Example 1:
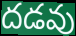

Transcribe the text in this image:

దడవు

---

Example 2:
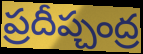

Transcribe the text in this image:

ప్రదీప్చంద్ర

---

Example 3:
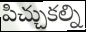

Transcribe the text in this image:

పిచ్చుకల్ని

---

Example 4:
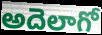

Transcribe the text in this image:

అదెలాగో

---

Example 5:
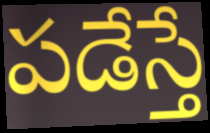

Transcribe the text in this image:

పడేస్తే